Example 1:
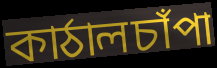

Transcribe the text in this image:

কাঠালচাঁপা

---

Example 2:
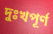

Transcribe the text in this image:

দুঃখপূর্ণ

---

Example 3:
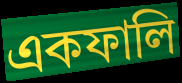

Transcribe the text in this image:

একফালি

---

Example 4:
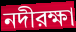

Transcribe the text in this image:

নদীরক্ষা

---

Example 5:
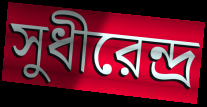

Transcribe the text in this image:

সুধীরেন্দ্র